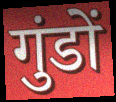
गुंडों